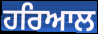
ਹਰਿਆਲ